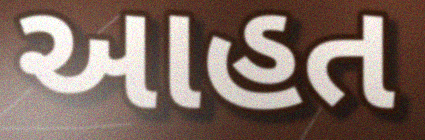
આહત